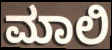
ಮಾಲಿ